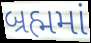
બ્રહ્મમાં